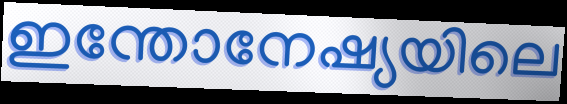
ഇന്തോനേഷ്യയിലെ